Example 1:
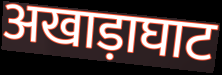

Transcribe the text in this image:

अखाड़ाघाट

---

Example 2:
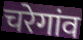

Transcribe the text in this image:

चरेगांव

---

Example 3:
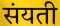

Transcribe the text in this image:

संयती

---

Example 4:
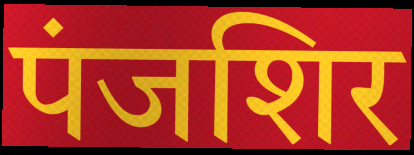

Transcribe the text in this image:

पंजशिर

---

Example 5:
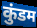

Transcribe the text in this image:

कुंडम